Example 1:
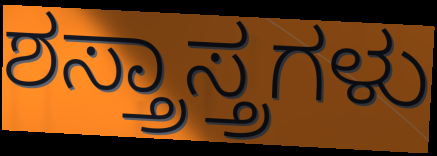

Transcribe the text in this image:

ಶಸ್ತ್ರಾಸ್ತ್ರಗಳು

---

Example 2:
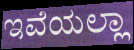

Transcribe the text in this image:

ಇವೆಯಲ್ಲಾ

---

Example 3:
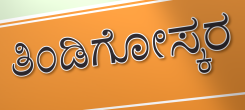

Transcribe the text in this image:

ತಿಂಡಿಗೋಸ್ಕರ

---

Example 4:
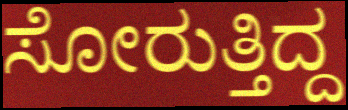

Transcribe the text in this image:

ಸೋರುತ್ತಿದ್ದ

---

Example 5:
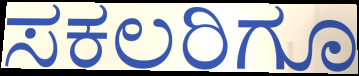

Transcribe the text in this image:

ಸಕಲರಿಗೂ